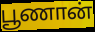
பூணான்